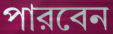
পারবেন